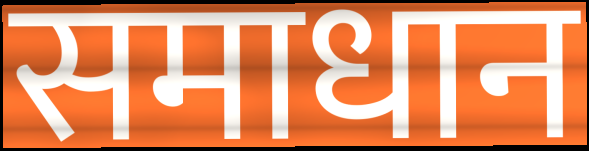
समाधान